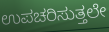
ಉಪಚರಿಸುತ್ತಲೇ